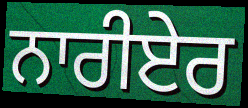
ਨਾਰੀਏਰ